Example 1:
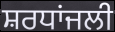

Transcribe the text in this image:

ਸ਼ਰਧਾਂਜਲੀ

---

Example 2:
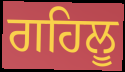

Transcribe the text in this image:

ਗਹਿਲੂ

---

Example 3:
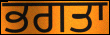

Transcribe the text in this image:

ਭਗਤਾ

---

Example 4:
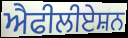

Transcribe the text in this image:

ਐਫੀਲੀਏਸ਼ਨ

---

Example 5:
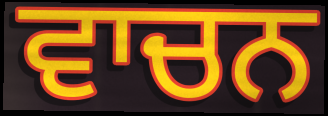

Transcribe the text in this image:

ਵਾਚਨ